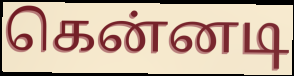
கென்னடி